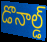
డొనాల్డ్